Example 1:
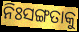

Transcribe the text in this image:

ନିଃସଙ୍ଗତାକୁ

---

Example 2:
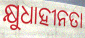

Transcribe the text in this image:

କ୍ଷୁଧାହୀନତା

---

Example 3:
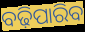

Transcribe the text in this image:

ବଢ଼ିପାରିବ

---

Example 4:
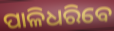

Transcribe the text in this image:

ପାଳିଧରିବେ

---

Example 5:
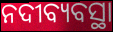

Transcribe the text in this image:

ନଦୀବ୍ୟବସ୍ଥା